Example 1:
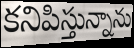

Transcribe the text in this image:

కనిపిస్తున్నాను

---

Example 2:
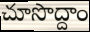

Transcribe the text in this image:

చూసొద్దాం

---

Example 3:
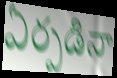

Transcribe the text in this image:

ఏర్పడినా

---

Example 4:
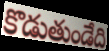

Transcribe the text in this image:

కొడుతుండేది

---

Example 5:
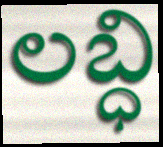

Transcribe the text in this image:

లబ్ధి